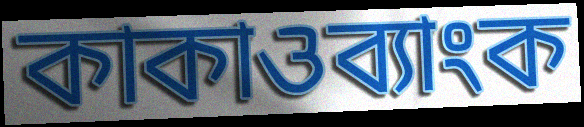
কাকাওব্যাংক